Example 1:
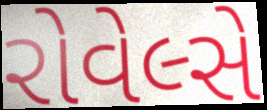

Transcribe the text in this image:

રોવેલ્સે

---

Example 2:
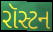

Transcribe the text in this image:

રૉસ્ટન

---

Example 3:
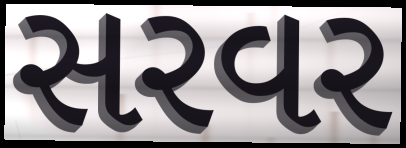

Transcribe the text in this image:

સરવર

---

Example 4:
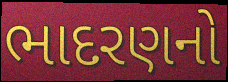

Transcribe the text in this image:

ભાદરણનો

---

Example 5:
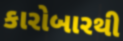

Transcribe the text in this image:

કારોબારથી